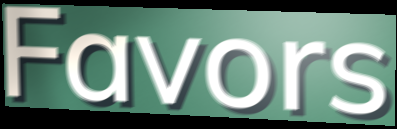
Favors